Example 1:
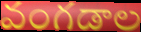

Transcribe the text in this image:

వంగడాల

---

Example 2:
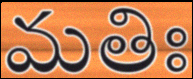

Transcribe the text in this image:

మతిః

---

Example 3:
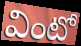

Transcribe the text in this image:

వింటో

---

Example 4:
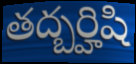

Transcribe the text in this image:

తద్బర్హిషి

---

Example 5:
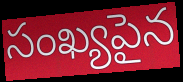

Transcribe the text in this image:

సంఖ్యపైన